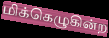
மிக்கெழுகின்ற